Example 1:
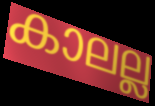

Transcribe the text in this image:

കാലല്ല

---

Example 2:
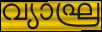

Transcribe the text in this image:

വ്യാഘ്ര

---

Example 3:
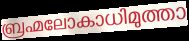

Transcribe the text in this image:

ബ്രഹ്മലോകാധിമുത്താ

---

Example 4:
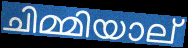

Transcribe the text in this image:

ചിമ്മിയാല്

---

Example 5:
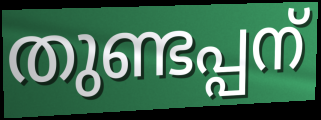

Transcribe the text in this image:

തുണ്ടപ്പന്